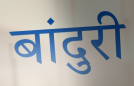
बांदुरी